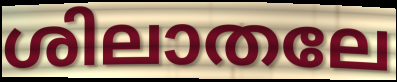
ശിലാതലേ